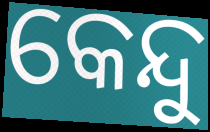
କେନ୍ଦୁ